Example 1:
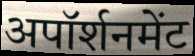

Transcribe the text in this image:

अपॉर्शनमेंट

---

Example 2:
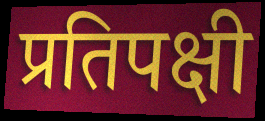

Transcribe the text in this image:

प्रतिपक्षी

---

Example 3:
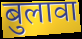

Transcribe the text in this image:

बुलावा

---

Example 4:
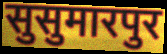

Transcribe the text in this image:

सुसुमारपुर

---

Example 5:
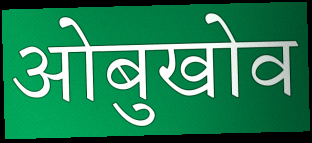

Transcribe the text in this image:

ओबुखोव